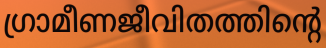
ഗ്രാമീണജീവിതത്തിന്റെ